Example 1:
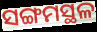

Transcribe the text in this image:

ସଙ୍ଗମସ୍ଥଳ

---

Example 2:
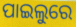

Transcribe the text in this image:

ପାଇଲୁରେ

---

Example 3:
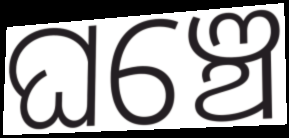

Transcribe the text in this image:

ଘଞ୍ଚେ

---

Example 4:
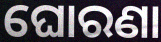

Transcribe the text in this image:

ଘୋରଣା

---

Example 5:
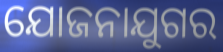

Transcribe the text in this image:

ଯୋଜନାଯୁଗର